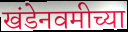
खंडेनवमीच्या